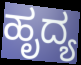
ಹೃದ್ಯ